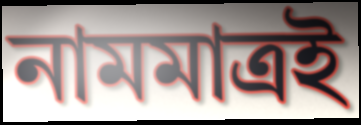
নামমাত্রই